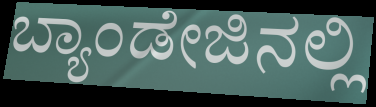
ಬ್ಯಾಂಡೇಜಿನಲ್ಲಿ